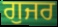
ਗੁਜਰ